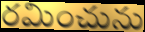
రమించును